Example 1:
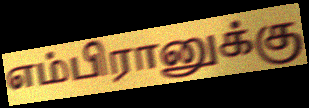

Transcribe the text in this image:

எம்பிரானுக்கு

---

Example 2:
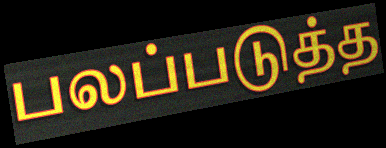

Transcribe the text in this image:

பலப்படுத்த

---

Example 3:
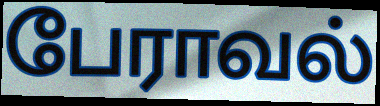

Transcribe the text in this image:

பேராவல்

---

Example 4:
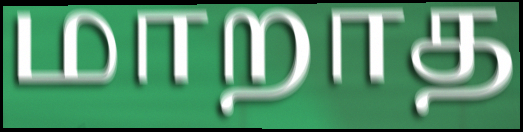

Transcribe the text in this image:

மாறாத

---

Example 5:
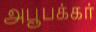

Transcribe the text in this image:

அபூபக்கர்